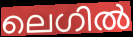
ലെഗിൽ